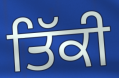
ਤਿੱਕੀ